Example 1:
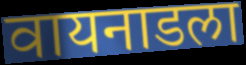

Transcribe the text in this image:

वायनाडला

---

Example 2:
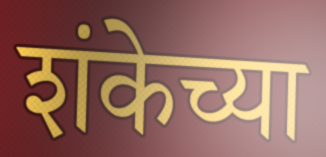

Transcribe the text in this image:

शंकेच्या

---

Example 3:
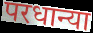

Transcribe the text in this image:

परधान्या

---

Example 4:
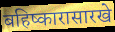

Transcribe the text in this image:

बहिष्कारासारखे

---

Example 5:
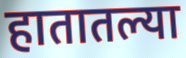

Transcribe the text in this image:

हातातल्या